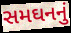
સમઘનનું